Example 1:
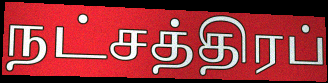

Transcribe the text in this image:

நட்சத்திரப்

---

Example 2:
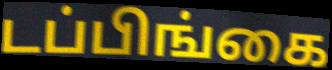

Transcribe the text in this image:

டப்பிங்கை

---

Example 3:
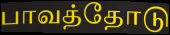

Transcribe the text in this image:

பாவத்தோடு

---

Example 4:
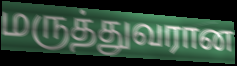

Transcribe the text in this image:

மருத்துவரான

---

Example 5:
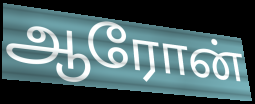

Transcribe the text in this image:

ஆரோன்